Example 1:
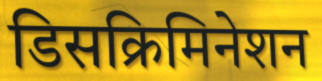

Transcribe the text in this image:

डिसक्रिमिनेशन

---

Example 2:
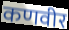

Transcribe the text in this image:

कणवीर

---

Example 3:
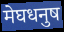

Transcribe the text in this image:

मेघधनुष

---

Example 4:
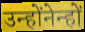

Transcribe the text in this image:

उन्होंनेन्हों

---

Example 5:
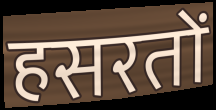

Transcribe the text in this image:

हसरतों